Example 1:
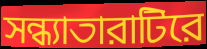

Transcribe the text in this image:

সন্ধ্যাতারাটিরে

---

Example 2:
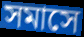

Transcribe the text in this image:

সমাসে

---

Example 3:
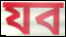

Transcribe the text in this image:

যব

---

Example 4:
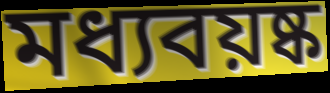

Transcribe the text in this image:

মধ্যবয়ষ্ক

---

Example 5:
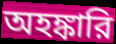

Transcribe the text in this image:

অহঙ্কারি